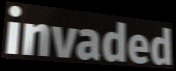
invaded